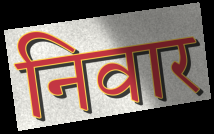
निवार